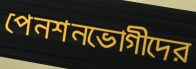
পেনশনভোগীদের